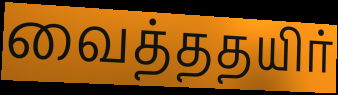
வைத்ததயிர்